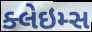
ક્લેઇમ્સ